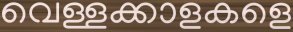
വെള്ളക്കാളകളെ